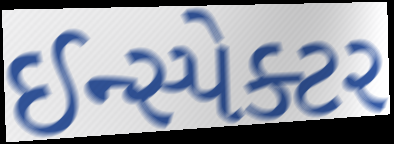
ઈન્સ્પેક્ટર